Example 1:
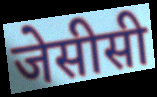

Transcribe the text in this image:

जेसीसी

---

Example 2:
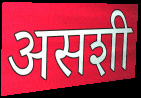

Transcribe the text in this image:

असशी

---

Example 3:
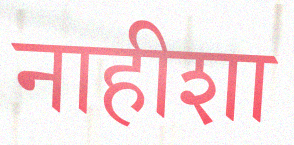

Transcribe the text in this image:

नाहीशा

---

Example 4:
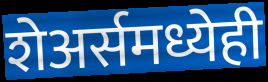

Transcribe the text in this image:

शेअर्समध्येही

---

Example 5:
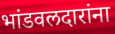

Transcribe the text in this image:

भांडवलदारांना